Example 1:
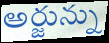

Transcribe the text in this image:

అర్జున్ను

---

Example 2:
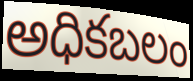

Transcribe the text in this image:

అధికబలం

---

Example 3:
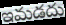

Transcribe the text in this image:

ఇమడదు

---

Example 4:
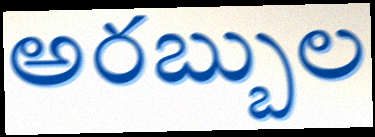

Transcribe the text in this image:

అరబ్బుల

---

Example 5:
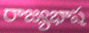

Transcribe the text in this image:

రాజ్యభాష